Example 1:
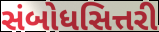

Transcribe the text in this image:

સંબોધસિત્તરી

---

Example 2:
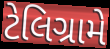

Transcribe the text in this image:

ટેલિગ્રામે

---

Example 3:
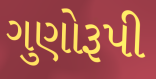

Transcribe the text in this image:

ગુણોરૂપી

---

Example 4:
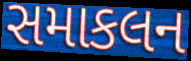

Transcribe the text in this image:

સમાકલન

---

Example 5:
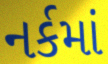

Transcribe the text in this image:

નર્કમાં